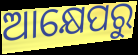
ଆକ୍ଷେପରୁ